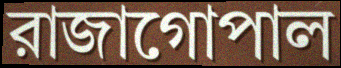
রাজাগোপাল